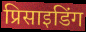
प्रिसाइडिंग